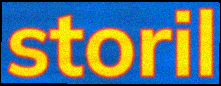
storil